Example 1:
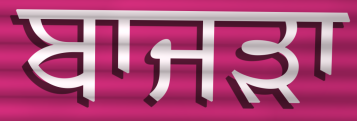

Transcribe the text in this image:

ਬਾਜਡ਼ਾ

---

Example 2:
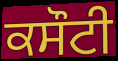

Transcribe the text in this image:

ਕਸੌਟੀ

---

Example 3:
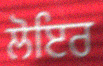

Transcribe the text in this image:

ਲੋਇਰ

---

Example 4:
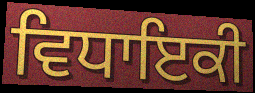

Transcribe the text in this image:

ਵਿਧਾਇਕੀ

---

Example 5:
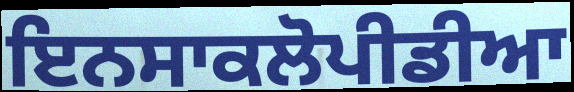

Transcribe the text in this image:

ਇਨਸਾਕਲੋਪੀਡੀਆ